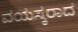
ವಯಸ್ಕರಾದ